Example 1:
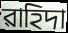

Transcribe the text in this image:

ৱাহিদা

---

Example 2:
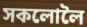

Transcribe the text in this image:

সকলোলৈ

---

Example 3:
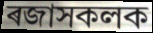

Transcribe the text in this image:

ৰজাসকলক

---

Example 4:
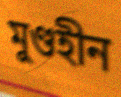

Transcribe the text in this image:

মুণ্ডহীন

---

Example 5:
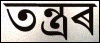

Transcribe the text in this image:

তন্ত্ৰৰ